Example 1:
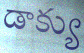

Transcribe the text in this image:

డాక్యు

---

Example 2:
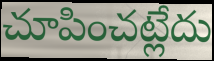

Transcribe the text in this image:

చూపించట్లేదు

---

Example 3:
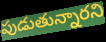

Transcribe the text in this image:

పుడుతున్నారని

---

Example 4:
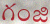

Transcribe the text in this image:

గంజి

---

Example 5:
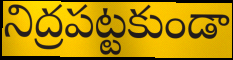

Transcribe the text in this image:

నిద్రపట్టకుండా